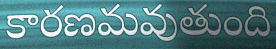
కారణమవుతుంది